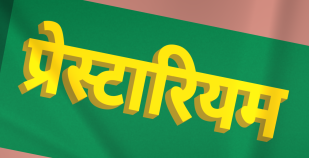
प्रेस्टारियम